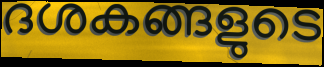
ദശകങ്ങളുടെ